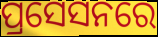
ପ୍ରସେସନରେ